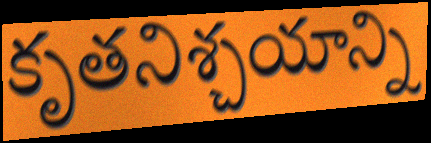
కృతనిశ్చయాన్ని